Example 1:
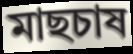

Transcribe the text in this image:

মাছচাষ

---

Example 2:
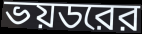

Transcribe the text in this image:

ভয়ডরের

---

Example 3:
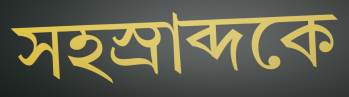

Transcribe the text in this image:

সহস্রাব্দকে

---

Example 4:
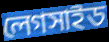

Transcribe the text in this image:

লেগসাইড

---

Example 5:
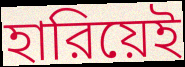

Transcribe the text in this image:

হারিয়েই